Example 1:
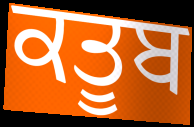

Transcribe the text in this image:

ਕਤੂਬ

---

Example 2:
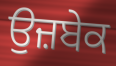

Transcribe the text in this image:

ਉਜ਼ਬੇਕ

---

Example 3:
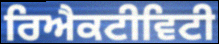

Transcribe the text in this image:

ਰਿਐਕਟੀਵਿਟੀ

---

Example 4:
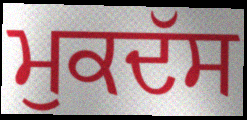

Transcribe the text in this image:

ਮੁਕਦੱਸ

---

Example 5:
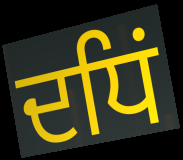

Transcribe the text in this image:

ਦਧਿਂ